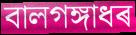
বালগঙ্গাধৰ